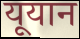
यूयान